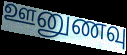
ஊனுணவு